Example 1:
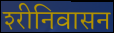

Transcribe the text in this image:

श्रीनिवासन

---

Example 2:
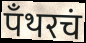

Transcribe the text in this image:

पँथरचं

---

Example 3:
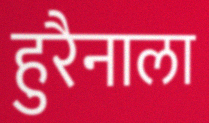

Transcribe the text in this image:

हुरैनाला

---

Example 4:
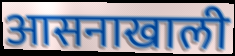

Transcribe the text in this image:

आसनाखाली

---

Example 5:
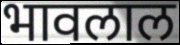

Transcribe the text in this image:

भावलाल